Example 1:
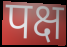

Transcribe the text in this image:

पक्ष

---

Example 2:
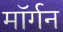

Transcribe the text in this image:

मॉर्गन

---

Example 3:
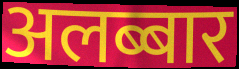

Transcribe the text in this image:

अलब्बार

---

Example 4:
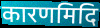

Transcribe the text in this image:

कारणमिदि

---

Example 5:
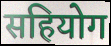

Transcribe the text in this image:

सहियोग